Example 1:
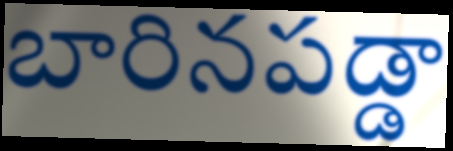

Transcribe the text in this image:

బారినపడ్డా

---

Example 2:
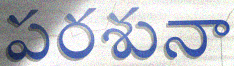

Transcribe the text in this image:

పరశునా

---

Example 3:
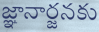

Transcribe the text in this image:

జ్ఞానార్జనకు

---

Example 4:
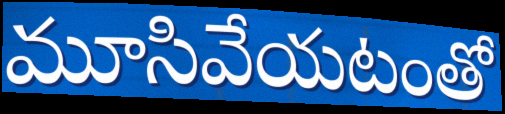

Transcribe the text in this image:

మూసివేయటంతో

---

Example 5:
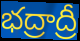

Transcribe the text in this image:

భద్రాద్రీ